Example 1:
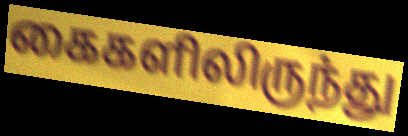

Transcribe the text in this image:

கைகளிலிருந்து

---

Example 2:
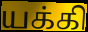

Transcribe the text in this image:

யக்கி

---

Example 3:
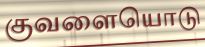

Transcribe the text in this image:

குவளையொடு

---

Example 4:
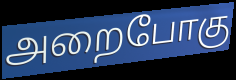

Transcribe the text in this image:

அறைபோகு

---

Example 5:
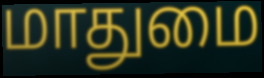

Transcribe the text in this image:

மாதுமை